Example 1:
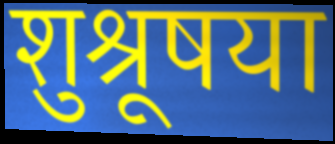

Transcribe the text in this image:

शुश्रूषया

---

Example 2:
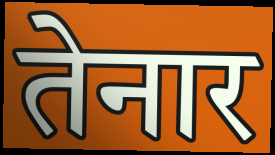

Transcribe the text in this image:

तेनार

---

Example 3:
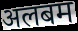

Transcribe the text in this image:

अलबम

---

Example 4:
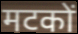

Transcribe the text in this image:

मटकों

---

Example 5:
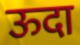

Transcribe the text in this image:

ऊदा